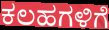
ಕಲಹಗಳಿಗೆ